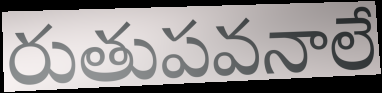
రుతుపవనాలే